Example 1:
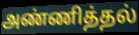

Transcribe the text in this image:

அண்ணித்தல்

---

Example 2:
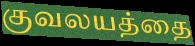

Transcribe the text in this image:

குவலயத்தை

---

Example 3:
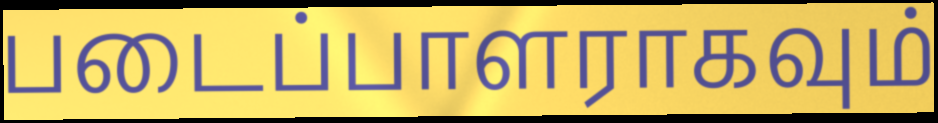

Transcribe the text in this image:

படைப்பாளராகவும்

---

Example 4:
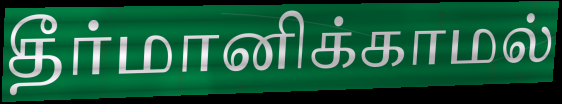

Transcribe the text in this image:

தீர்மானிக்காமல்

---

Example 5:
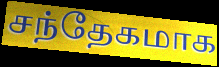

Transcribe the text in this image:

சந்தேகமாக